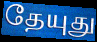
தேயுது